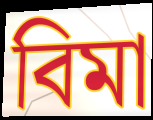
বিমা